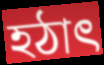
হঠাৎ